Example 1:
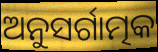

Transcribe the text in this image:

ଅନୁସର୍ଗାତ୍ମକ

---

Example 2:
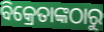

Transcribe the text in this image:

ବିକ୍ରେତାଙ୍କଠାରୁ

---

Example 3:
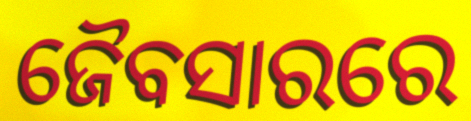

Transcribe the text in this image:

ଜୈବସାରରେ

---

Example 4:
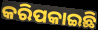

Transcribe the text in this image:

କରିପକାଇଛି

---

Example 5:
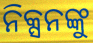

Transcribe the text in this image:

ନିକ୍ସନଙ୍କୁ